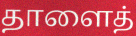
தாளைத்